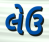
લેઉ